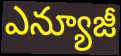
ఎన్యూజీ